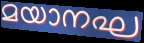
മയാനഘ